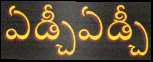
ఏడ్చీఏడ్చీ